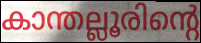
കാന്തല്ലൂരിന്റെ